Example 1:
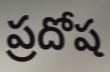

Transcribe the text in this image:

ప్రదోష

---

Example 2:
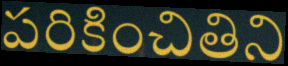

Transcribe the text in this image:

పరికించితిని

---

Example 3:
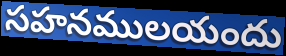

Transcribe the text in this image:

సహనములయందు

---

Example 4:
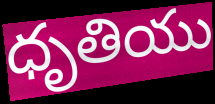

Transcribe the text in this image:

ధృతియు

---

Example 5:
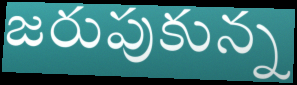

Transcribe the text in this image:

జరుపుకున్న